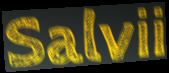
Salvii